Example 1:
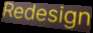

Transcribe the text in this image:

Redesign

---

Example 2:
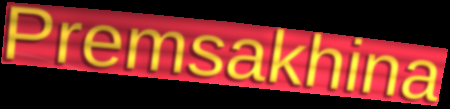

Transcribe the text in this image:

Premsakhina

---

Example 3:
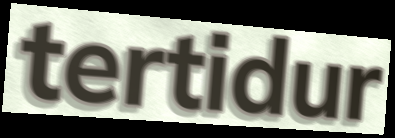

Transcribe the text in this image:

tertidur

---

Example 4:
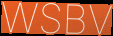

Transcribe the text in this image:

WSBV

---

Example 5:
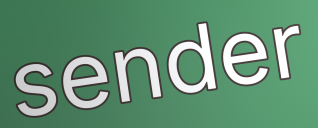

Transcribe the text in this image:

sender